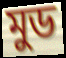
মুড